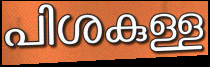
പിശകുള്ള